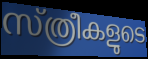
സ്‌ത്രീകളുടെ